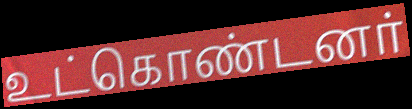
உட்கொண்டனர்